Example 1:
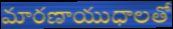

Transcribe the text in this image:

మారణాయుధాలతో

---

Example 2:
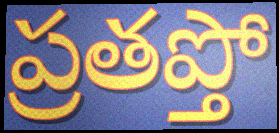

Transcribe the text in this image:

ప్రతప్తో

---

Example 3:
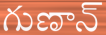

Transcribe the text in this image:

గుణాన్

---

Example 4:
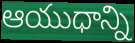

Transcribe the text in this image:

ఆయుధాన్ని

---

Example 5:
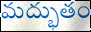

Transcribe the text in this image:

మద్భుతం